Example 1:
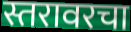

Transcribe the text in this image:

स्तरावरचा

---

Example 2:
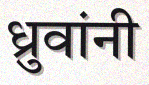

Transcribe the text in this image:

ध्रुवांनी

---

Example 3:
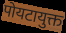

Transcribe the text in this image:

पोयटायुक्त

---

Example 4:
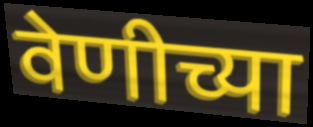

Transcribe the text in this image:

वेणीच्या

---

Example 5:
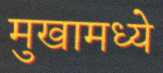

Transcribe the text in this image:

मुखामध्ये